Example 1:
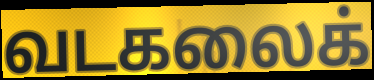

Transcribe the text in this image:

வடகலைக்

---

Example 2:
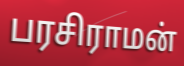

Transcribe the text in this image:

பரசிராமன்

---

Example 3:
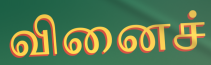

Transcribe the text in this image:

வினைச்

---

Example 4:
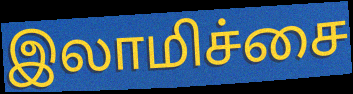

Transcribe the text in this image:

இலாமிச்சை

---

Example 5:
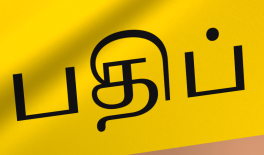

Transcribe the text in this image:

பதிப்